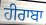
ਹੀਰਾਬਾ